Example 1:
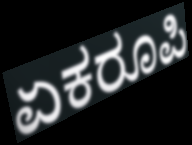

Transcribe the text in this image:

ಏಕರೂಪಿ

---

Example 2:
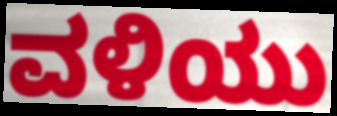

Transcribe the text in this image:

ವಳಿಯು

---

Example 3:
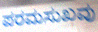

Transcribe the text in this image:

ಪರಮಸುಖವು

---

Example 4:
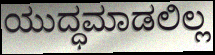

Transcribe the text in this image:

ಯುದ್ಧಮಾಡಲಿಲ್ಲ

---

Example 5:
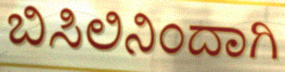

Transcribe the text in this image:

ಬಿಸಿಲಿನಿಂದಾಗಿ